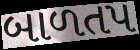
બાળતપ